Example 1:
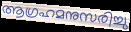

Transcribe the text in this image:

ആഗ്രഹമനുസരിച്ചു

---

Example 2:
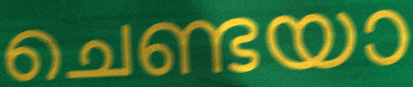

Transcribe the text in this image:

ചെണ്ടയാ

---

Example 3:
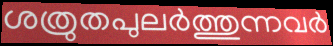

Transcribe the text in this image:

ശത്രുതപുലർത്തുന്നവർ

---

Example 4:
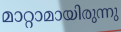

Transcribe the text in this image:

മാറ്റാമായിരുന്നു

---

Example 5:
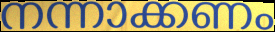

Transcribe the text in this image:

നന്നാക്കണം